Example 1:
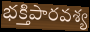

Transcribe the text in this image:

భక్తిపారవశ్య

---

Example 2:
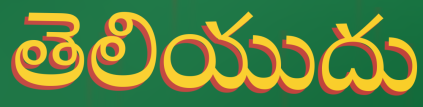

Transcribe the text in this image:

తెలియుదు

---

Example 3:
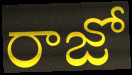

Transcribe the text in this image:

రాజో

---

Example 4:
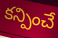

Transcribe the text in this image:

కన్పించే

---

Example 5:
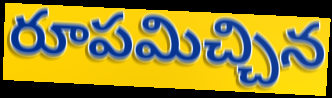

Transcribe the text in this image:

రూపమిచ్చిన